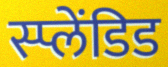
स्प्लेंडिड